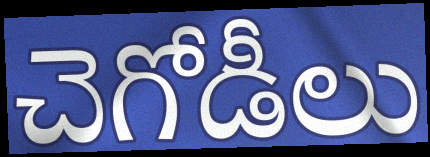
చెగోడీలు